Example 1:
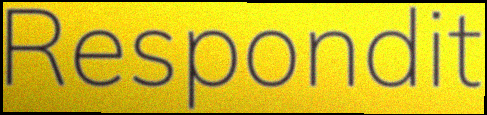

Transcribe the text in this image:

Respondit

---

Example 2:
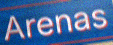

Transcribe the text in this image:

Arenas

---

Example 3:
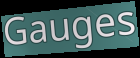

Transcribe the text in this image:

Gauges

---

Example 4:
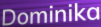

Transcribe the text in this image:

Dominika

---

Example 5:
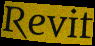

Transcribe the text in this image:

Revit